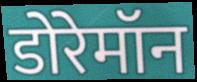
डोरेमॉन